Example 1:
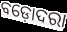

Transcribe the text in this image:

ବଡ଼ୋଦରା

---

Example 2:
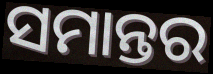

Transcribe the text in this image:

ସମାନ୍ତର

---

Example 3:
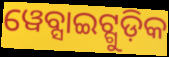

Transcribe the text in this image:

ୱେବ୍ସାଇଟ୍ଗୁଡ଼ିକ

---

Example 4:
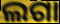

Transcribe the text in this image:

ଲଗା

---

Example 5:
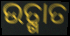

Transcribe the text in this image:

ଉତ୍ଖାତ